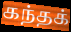
கந்தக்